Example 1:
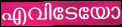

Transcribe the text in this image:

എവിടേയോ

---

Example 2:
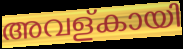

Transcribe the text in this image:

അവള്കായി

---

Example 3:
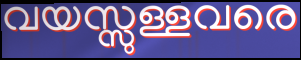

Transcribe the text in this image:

വയസ്സുള്ളവരെ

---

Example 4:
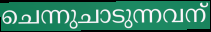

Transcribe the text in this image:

ചെന്നുചാടുന്നവന്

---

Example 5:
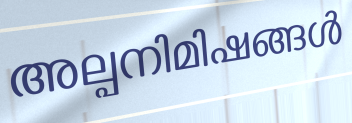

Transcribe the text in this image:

അല്പനിമിഷങ്ങൾ